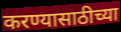
करण्यासाठीच्या